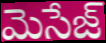
మెసేజ్